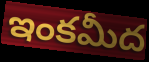
ఇంకమీద